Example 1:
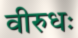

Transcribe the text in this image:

वीरुधः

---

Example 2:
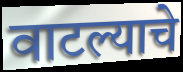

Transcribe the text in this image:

वाटल्याचे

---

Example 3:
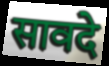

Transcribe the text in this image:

सावदे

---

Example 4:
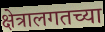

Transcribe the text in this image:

क्षेत्रालगतच्या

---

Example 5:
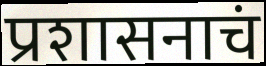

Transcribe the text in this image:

प्रशासनाचं